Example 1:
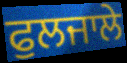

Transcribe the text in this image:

ਫੁਲਜਾਲੇ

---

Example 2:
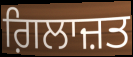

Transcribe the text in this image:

ਗ਼ਿਲਾਜ਼ਤ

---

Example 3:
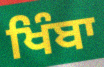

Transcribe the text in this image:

ਖਿੰਬਾ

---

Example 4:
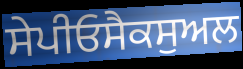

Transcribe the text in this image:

ਸੇਪੀਓਸੈਕਸੁਅਲ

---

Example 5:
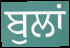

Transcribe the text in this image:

ਬੁਲਾਂ